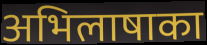
अभिलाषाका